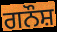
ਗਨੌਸ਼